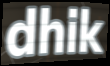
dhik